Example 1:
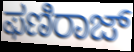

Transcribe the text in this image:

ಫಣಿರಾಜ್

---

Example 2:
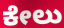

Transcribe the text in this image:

ಕೇಲು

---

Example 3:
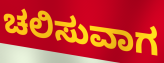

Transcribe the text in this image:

ಚಲಿಸುವಾಗ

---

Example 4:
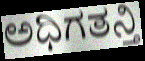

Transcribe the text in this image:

ಅಧಿಗತನ್ತಿ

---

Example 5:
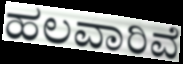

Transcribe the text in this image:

ಹಲವಾರಿವೆ